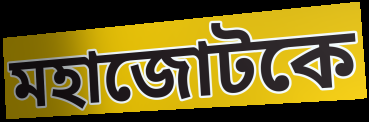
মহাজোটকে